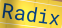
Radix